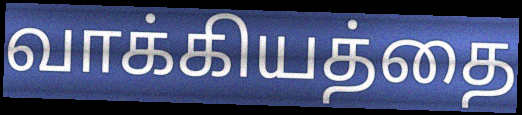
வாக்கியத்தை